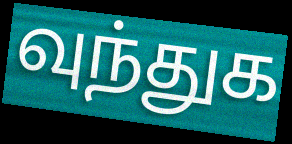
வுந்துக